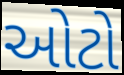
ઓટો